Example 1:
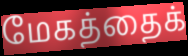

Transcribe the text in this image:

மேகத்தைக்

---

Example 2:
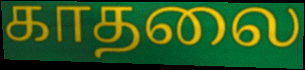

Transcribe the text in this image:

காதலை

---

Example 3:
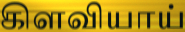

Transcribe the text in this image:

கிளவியாய்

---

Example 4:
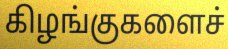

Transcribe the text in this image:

கிழங்குகளைச்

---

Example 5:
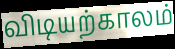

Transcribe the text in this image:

விடியற்காலம்